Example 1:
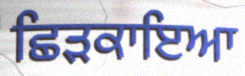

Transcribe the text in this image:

ਛਿੜਕਾਇਆ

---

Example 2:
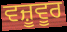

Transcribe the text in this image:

ਵਜ਼ੂਵੂਰ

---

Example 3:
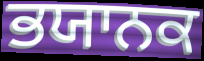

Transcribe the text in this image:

ਭਯਾਨਕ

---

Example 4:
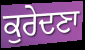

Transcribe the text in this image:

ਕੁਰੇਦਣਾ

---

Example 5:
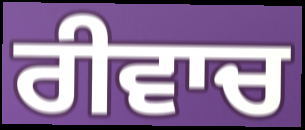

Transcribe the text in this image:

ਰੀਵਾਚ